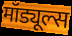
मॉड्यूल्स